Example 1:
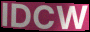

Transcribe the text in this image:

IDCW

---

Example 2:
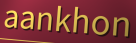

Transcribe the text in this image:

aankhon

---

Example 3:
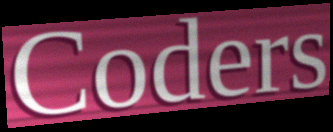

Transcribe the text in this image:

Coders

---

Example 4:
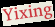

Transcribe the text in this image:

Yixing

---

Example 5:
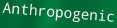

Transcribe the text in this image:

Anthropogenic